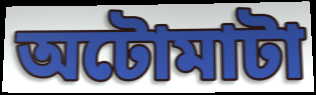
অটোমাটা